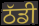
ਠੱਡੀ